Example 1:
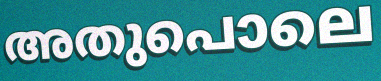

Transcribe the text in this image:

അതുപൊലെ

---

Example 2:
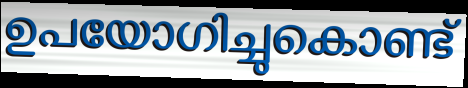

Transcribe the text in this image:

ഉപയോഗിച്ചുകൊണ്ട്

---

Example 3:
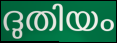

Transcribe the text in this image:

ദുതിയം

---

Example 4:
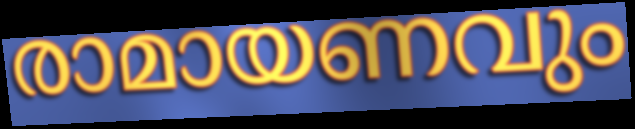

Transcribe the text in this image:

രാമായണവും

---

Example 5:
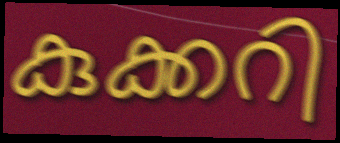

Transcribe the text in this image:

കുക്കറി